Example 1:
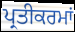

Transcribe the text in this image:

ਪ੍ਰਤੀਕਰਮਾਂ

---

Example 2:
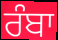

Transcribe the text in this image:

ਰੰਬਾ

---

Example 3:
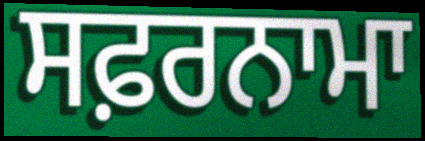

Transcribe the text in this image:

ਸਫ਼ਰਨਾਮਾ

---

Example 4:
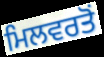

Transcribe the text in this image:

ਮਿਲਵਰਤੋਂ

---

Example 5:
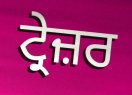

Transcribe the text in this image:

ਟ੍ਰੇਜ਼ਰ